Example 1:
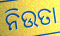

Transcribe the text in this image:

ନିଉତା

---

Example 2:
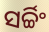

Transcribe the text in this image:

ସର୍ଚ୍ଚିଂ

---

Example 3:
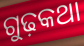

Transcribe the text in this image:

ଗୁଢ଼କଥା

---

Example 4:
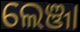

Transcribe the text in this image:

ଲେଞ୍ଜା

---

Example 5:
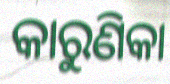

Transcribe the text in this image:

କାରୁଣିକା